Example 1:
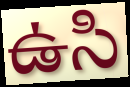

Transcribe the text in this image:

ఉసి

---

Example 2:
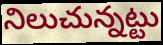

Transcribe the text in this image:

నిలుచున్నట్టు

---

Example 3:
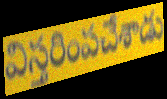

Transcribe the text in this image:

విస్తరింపచేశాడు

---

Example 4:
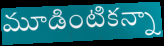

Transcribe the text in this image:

మూడింటికన్నా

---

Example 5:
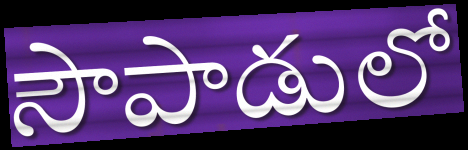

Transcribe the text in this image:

సౌపాడులో